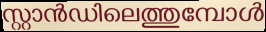
സ്റ്റാൻഡിലെത്തുമ്പോൾ